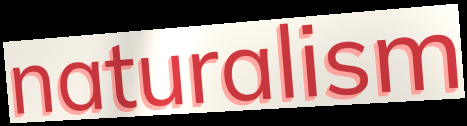
naturalism